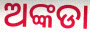
ଅଙ୍କଡା